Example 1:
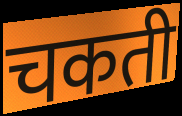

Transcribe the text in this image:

चकती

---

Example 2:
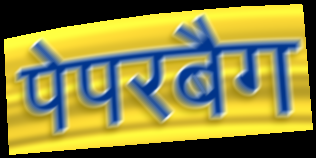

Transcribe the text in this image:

पेपरबैग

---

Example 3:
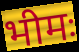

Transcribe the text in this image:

भीमः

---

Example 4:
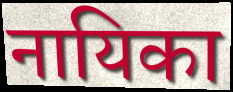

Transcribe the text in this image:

नायिका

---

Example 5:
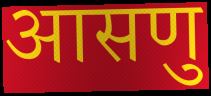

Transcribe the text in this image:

आसणु